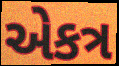
એકત્ર